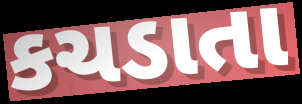
કચડાતા